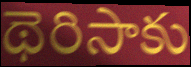
థెరిసాకు